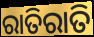
ରାତିରାତି